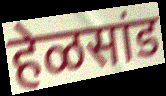
हेळसांड